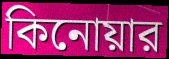
কিনোয়ার